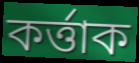
কৰ্ত্তাক